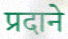
प्रदाने